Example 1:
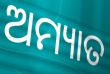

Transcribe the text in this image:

ଅମ୍ୟାତ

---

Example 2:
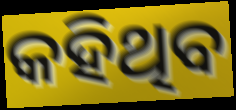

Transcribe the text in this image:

କହିଥିବ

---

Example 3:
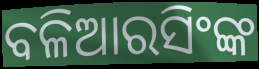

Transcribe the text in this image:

ବଳିଆରସିଂଙ୍କ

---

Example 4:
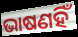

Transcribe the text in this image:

ଭାଷଣହିଁ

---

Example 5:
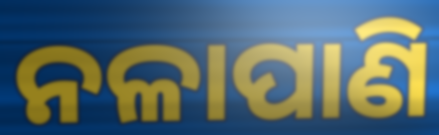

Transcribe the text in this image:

ନଳାପାଣି